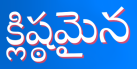
క్లిష్ఠమైన